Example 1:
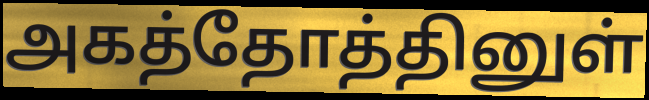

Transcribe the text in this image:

அகத்தோத்தினுள்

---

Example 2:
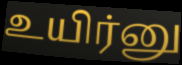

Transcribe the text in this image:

உயிர்னு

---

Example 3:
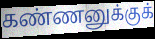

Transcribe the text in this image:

கண்ணனுக்குக்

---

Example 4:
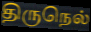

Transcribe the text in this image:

திருநெல்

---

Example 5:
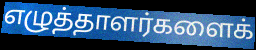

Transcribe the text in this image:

எழுத்தாளர்களைக்